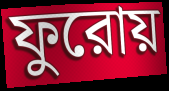
ফুরোয়